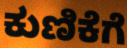
ಕುಣಿಕೆಗೆ